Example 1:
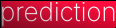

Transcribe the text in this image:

prediction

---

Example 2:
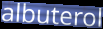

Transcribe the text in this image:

albuterol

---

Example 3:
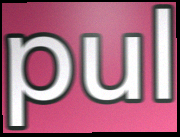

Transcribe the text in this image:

pul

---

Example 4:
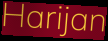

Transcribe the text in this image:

Harijan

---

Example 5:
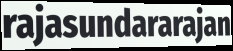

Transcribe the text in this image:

rajasundararajan